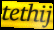
tethij